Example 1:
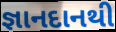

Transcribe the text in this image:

જ્ઞાનદાનથી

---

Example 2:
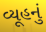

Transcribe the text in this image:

વ્યૂહનું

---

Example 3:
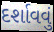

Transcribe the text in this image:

દર્શાવવું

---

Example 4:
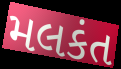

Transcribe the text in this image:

મલકંત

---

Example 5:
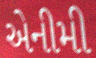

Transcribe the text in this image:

એનીમી